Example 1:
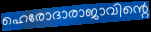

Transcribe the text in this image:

ഹെരോദാരാജാവിന്റെ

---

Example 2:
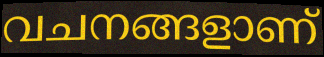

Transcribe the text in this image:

വചനങ്ങളാണ്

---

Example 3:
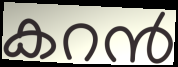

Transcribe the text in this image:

കറൻ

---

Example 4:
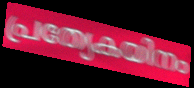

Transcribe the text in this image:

പ്രത്യേകയിനം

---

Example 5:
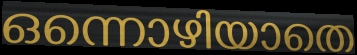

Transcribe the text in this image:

ഒന്നൊഴിയാതെ